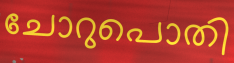
ചോറുപൊതി